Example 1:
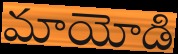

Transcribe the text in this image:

మాయోడి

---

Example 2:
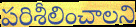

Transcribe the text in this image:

పరిశీలించాలని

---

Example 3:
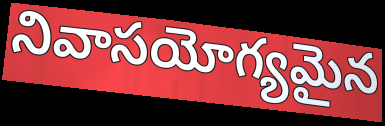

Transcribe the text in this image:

నివాసయోగ్యమైన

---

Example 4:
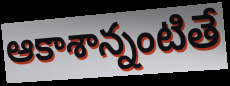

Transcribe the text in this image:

ఆకాశాన్నంటితే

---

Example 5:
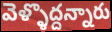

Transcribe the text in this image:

వెళ్ళొద్దన్నారు